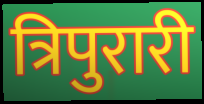
त्रिपुरारी